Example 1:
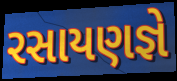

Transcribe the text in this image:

રસાયણજ્ઞે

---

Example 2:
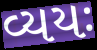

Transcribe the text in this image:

વ્યયઃ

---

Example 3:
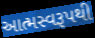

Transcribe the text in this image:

આત્મસ્વરૂપથી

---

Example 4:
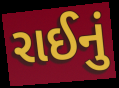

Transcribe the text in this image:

રાઈનું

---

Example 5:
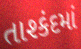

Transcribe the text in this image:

તાશ્કંદમાં